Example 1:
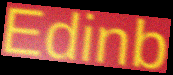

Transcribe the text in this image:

Edinb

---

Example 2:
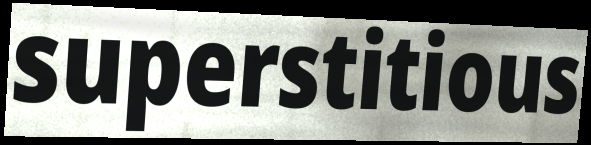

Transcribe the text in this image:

superstitious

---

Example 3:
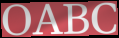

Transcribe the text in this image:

OABC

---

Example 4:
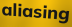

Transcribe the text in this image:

aliasing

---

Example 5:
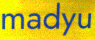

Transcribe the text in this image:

madyu